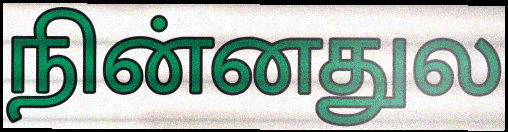
நின்னதுல